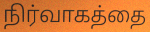
நிர்வாகத்தை